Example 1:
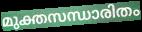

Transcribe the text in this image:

മുക്തസന്ധാരിതം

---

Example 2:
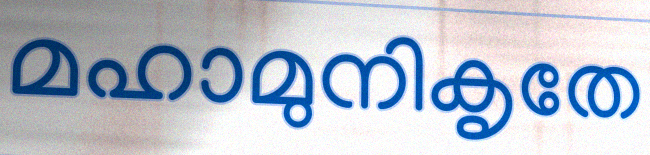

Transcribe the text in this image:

മഹാമുനികൃതേ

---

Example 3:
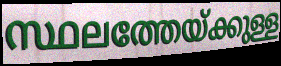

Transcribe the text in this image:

സ്ഥലത്തേയ്ക്കുള്ള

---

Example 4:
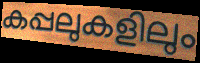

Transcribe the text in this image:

കപ്പലുകളിലും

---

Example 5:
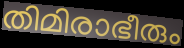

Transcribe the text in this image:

തിമിരാഭീരും